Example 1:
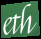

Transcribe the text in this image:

eth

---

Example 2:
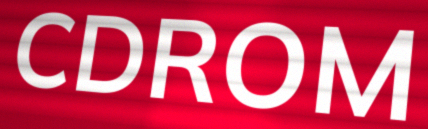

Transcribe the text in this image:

CDROM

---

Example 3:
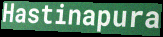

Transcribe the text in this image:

Hastinapura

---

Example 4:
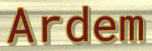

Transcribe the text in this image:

Ardem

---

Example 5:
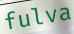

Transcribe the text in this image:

fulva